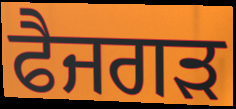
ਫੈਜਗੜ